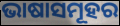
ଭାଷାସମୂହର